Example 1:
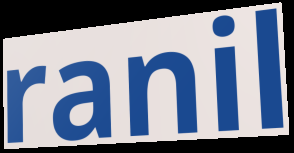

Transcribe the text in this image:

ranil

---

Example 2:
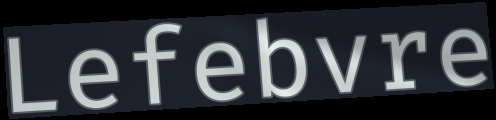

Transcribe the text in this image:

Lefebvre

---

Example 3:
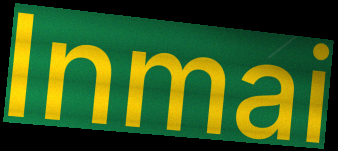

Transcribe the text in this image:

Inmai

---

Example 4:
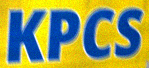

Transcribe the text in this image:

KPCS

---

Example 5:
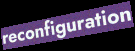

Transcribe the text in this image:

reconfiguration